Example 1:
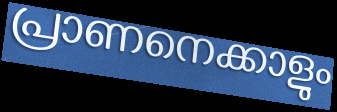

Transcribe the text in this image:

പ്രാണനെക്കാളും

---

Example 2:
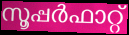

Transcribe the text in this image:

സൂപ്പർഫാറ്റ്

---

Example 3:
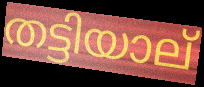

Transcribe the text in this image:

തട്ടിയാല്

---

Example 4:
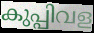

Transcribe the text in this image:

കുപ്പിവള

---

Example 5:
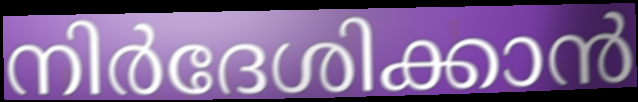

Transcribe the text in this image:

നിർദേശിക്കാൻ